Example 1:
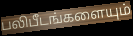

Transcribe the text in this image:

பலிபீடங்களையும்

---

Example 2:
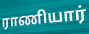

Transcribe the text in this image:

ராணியார்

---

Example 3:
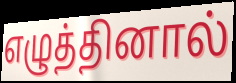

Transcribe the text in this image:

எழுத்தினால்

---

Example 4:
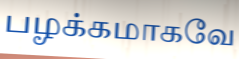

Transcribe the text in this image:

பழக்கமாகவே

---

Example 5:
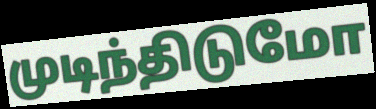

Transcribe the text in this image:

முடிந்திடுமோ